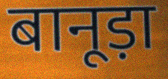
बानूड़ा